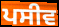
ਪਸੀਵ